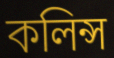
কলিন্স